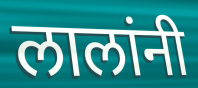
लालांनी